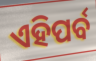
ଏହିପର୍ବ